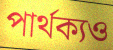
পার্থক্যও